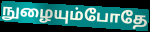
நுழையும்போதே